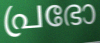
പ്രഭോ